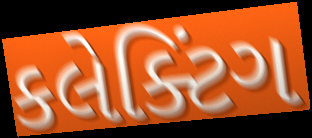
કલેક્ટિંગ